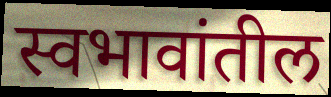
स्वभावांतील